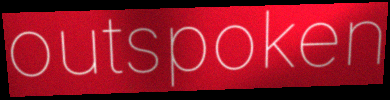
outspoken